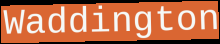
Waddington